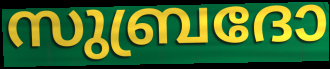
സുബ്രദോ